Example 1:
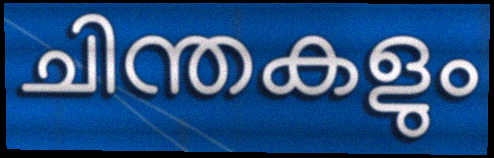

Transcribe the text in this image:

ചിന്തകളും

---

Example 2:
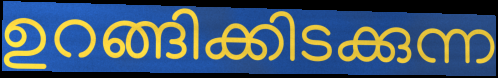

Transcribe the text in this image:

ഉറങ്ങിക്കിടക്കുന്ന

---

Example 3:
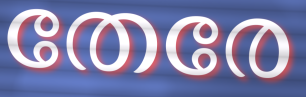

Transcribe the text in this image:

തേരേ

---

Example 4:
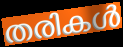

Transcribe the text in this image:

തരികൾ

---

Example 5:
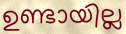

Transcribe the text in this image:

ഉണ്ടായില്ല